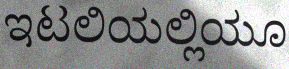
ಇಟಲಿಯಲ್ಲಿಯೂ